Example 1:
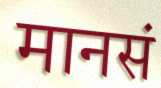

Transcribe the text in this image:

मानसं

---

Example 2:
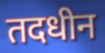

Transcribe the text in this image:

तदधीन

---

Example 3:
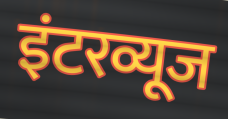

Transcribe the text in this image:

इंटरव्यूज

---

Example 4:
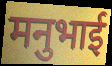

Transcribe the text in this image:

मनुभाई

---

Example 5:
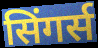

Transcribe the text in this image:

सिंगर्स